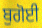
ਬੁਗੋਈ